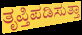
ತೃಪ್ತಿಪಡಿಸುತ್ತಾ